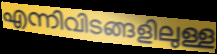
എന്നിവിടങ്ങളിലുള്ള